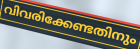
വിവരിക്കേണ്ടതിനും